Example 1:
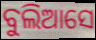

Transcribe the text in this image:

ବୁଲିଆସେ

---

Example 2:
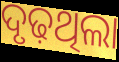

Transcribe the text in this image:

ଦୃଢ଼ଥିଲା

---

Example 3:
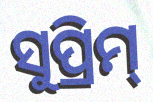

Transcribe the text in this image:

ସୁପ୍ରିମ୍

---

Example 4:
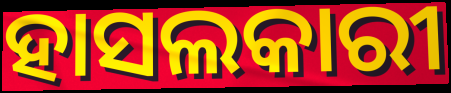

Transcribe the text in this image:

ହାସଲକାରୀ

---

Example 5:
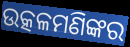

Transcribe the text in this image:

ଉତ୍କଳମଣିଙ୍କର